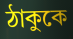
ঠাকুকে